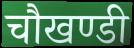
चौखण्डी